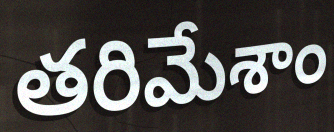
తరిమేశాం